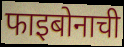
फाइबोनाची